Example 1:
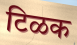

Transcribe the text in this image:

टिळक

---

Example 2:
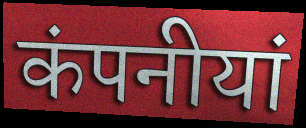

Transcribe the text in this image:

कंपनीयां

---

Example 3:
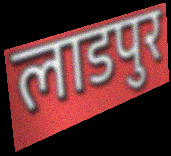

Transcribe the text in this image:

लाडपुर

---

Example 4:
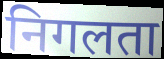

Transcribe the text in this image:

निगलता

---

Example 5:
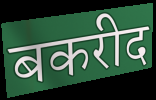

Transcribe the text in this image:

बकरीद